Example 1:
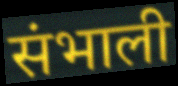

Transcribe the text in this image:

संभाली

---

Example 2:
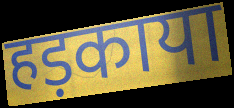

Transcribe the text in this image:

हड़काया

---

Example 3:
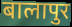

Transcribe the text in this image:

बालापुर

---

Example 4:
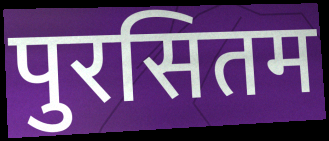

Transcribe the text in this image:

पुरसितम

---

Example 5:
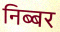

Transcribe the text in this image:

निब्बर